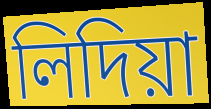
লিদিয়া